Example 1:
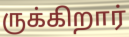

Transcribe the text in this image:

ருக்கிறார்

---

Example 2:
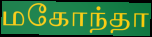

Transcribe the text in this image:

மகோந்தா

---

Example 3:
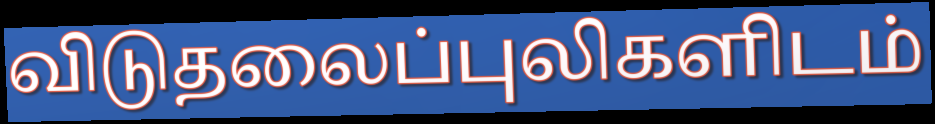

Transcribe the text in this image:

விடுதலைப்புலிகளிடம்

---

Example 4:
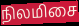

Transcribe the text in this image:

நிலமிசை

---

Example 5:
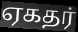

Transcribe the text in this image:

ஏகதர்